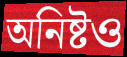
অনিষ্টও